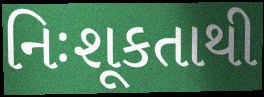
નિઃશૂકતાથી